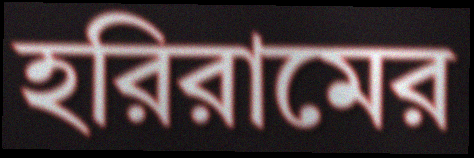
হরিরামের